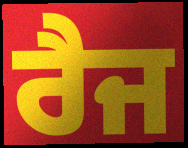
ਰੈਜ